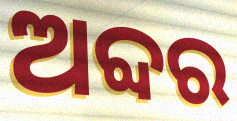
ଅବ୍ଦର